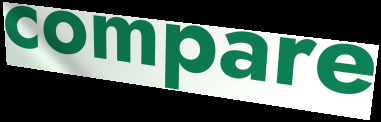
compare